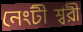
নেংটীশ্বরী